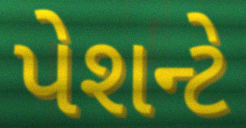
પેશન્ટે